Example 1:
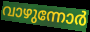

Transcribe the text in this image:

വാഴുന്നോർ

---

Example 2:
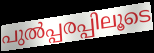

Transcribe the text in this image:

പുൽപ്പരപ്പിലൂടെ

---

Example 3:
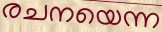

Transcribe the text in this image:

രചനയെന്ന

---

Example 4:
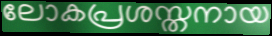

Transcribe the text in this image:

ലോകപ്രശസ്തനായ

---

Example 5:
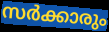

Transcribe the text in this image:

സർക്കാരും